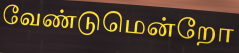
வேண்டுமென்றோ